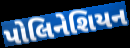
પોલિનેશિયન